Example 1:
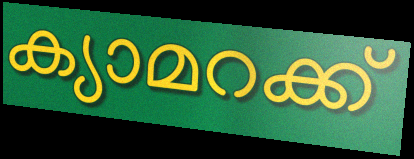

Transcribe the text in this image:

ക്യാമറക്ക്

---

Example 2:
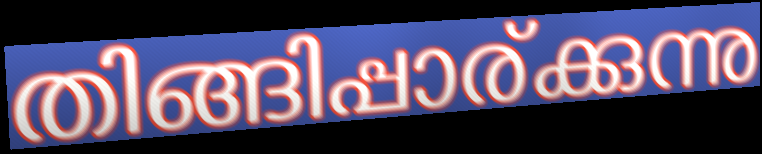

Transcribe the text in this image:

തിങ്ങിപ്പാര്ക്കുന്നു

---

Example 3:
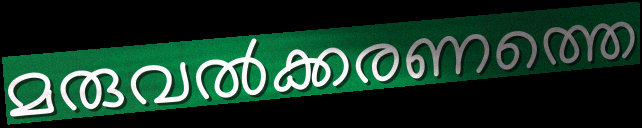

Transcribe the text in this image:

മരുവൽക്കരണത്തെ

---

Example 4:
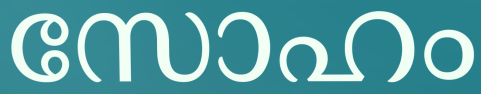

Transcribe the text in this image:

സോഹം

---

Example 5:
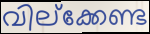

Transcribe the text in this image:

വില്ക്കേണ്ട